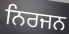
ਨਿਰਜਨ